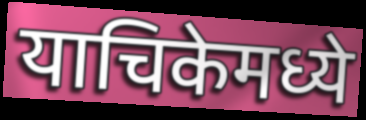
याचिकेमध्ये